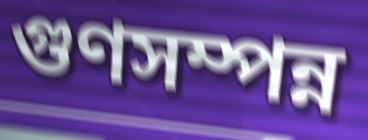
গুণসম্পন্ন